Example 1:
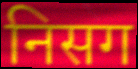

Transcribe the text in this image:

निसग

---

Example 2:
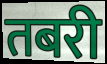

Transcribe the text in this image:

तबरी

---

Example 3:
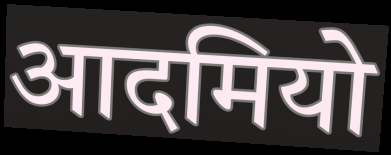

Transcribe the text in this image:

आदमियो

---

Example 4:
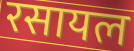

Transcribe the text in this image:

रसायल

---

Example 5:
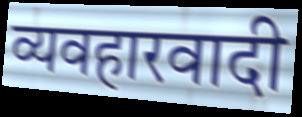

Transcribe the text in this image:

व्यवहारवादी